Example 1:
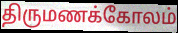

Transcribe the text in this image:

திருமணக்கோலம்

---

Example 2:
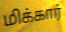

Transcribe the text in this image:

மிக்கார்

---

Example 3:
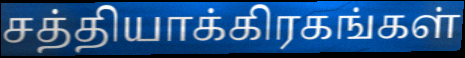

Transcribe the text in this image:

சத்தியாக்கிரகங்கள்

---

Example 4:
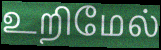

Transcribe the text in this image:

உறிமேல்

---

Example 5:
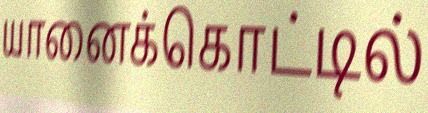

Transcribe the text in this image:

யானைக்கொட்டில்